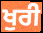
ਖੁਰੀ